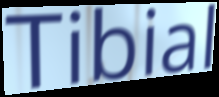
Tibial